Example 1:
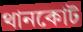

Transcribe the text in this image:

থানকোট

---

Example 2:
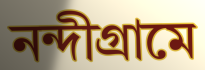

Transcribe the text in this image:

নন্দীগ্রামে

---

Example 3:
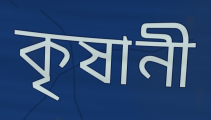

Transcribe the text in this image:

কৃষানী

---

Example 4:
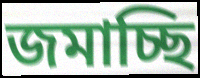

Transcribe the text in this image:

জমাচ্ছি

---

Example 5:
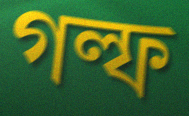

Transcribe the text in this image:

গল্ফ